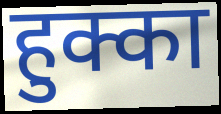
हुक्का